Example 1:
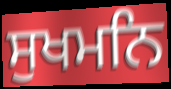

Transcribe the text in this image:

ਸੁਖਮਨਿ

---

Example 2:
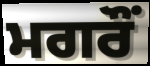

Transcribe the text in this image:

ਮਗਰੌਂ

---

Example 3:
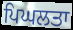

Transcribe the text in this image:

ਪਿਘਲਤਾ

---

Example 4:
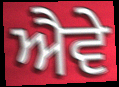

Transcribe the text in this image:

ਐਵੇ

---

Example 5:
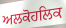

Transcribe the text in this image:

ਅਲਕੋਹਲਿਕ